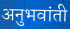
अनुभवांती